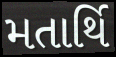
મતાર્થિ